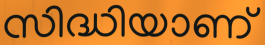
സിദ്ധിയാണ്